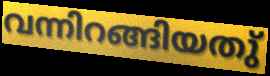
വന്നിറങ്ങിയതു്